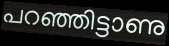
പറഞ്ഞിട്ടാണു